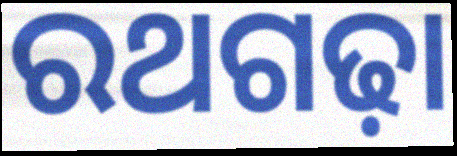
ରଥଗଢ଼ା